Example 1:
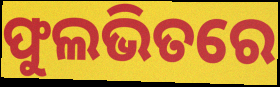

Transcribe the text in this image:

ଫୁଲଭିତରେ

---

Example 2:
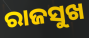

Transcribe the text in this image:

ରାଜସୁଖ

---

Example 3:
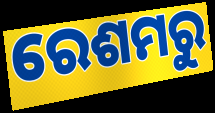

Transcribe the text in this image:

ରେଶମରୁ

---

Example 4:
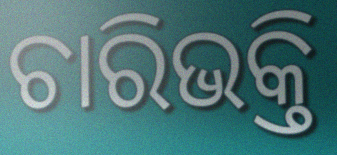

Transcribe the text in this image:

ଚାରିଭକ୍ତି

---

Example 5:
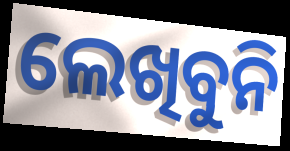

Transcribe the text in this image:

ଲେଖିବୁନି